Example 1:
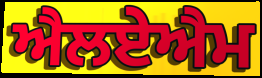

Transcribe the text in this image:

ਐਲਏਐਮ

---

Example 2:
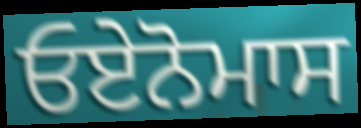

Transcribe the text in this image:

ਓਏਨੋਮਾਸ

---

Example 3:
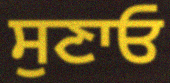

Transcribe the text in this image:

ਸੁਣਾਓ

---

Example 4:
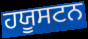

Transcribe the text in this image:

ਹਯੂਸਟਨ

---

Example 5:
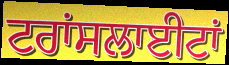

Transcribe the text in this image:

ਟਰਾਂਸਲਾਈਟਾਂ